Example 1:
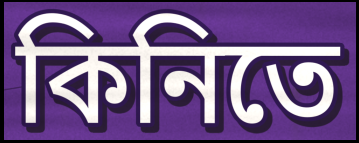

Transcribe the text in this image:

কিনিতে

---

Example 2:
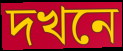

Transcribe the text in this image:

দখনে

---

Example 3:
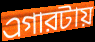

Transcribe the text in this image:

এগারটায়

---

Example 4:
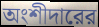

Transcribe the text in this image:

অংশীদারের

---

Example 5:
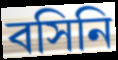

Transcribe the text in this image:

বসিনি